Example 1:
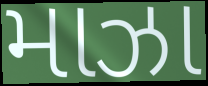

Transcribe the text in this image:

માઝા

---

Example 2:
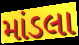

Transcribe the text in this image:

માંડલા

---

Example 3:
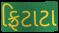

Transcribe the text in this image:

ફ્રિટાટા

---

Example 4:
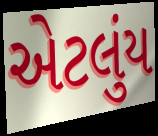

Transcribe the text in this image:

એટલુંય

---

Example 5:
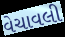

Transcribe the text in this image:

વેચાવલી